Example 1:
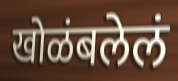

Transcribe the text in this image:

खोळंबलेलं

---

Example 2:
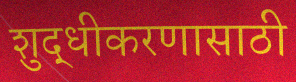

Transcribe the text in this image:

शुद्धीकरणासाठी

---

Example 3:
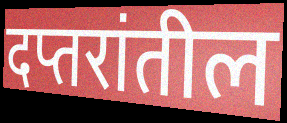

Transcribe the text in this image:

दप्तरांतील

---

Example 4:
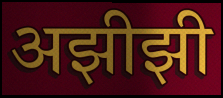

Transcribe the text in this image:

अझीझी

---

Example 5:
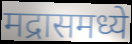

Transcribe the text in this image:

मद्रासमध्ये